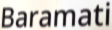
Baramati